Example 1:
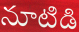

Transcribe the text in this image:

నూటిడి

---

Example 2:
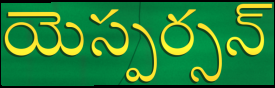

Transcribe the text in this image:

యెస్పర్సన్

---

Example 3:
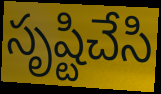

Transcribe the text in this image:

సృష్టిచేసి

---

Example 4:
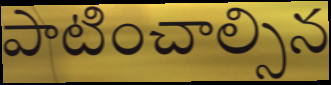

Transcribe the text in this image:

పాటించాల్సిన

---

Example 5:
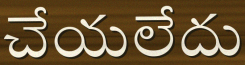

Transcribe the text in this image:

చేయలేదు